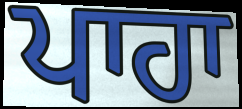
ਪਾਹਾ